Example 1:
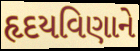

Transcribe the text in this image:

હૃદયવિણાને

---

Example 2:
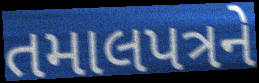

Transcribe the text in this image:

તમાલપત્રને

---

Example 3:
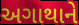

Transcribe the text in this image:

અગાથાને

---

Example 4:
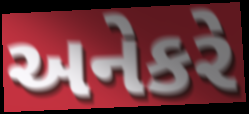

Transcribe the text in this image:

અનેકરે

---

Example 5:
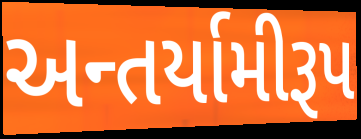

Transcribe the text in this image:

અન્તર્યામીરૂપ